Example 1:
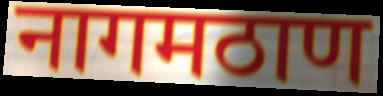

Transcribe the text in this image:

नागमठाण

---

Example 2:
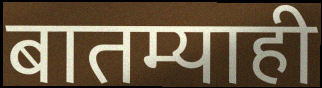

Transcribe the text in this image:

बातम्याही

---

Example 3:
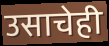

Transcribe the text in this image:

उसाचेही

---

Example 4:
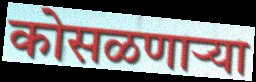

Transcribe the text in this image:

कोसळणाऱ्या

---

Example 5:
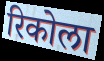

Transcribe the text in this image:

रिकोला